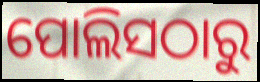
ପୋଲିସଠାରୁ